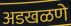
अडखळणे